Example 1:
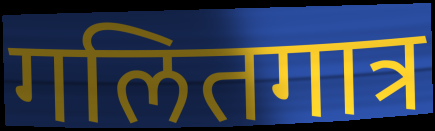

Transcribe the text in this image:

गलितगात्र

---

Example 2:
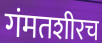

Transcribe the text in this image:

गंमतशीरच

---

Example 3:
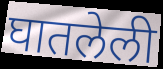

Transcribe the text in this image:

घातलेली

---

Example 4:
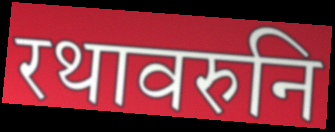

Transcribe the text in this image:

रथावरुनि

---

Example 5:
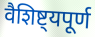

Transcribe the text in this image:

वैशिष्ट्यपूर्ण